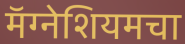
मॅग्नेशियमचा